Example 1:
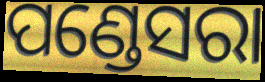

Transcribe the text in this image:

ପଣ୍ଡେସରା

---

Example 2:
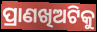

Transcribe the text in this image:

ପ୍ରାଣଖିଅଟିକୁ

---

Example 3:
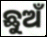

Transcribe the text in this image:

ଛୁଅଁ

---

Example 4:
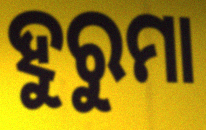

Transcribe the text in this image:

ହୁରୁମା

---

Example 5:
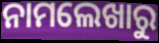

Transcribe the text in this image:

ନାମଲେଖାରୁ